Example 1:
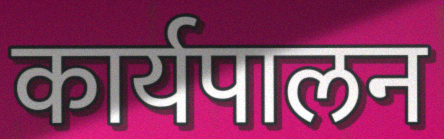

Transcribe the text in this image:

कार्यपालन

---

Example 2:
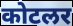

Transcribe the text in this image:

कोटलर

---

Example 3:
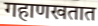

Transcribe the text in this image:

गहाणखतात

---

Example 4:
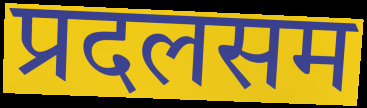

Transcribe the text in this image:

प्रदलसम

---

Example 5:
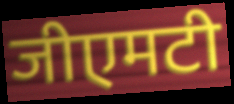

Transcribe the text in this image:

जीएमटी